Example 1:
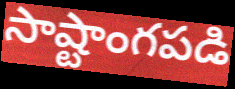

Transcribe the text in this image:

సాష్టాంగపడి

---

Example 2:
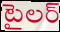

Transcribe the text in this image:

టైలర్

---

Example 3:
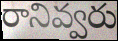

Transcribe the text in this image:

రానివ్వరు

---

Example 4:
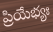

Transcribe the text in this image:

ప్రియేభ్యః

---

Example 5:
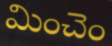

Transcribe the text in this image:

మించెం